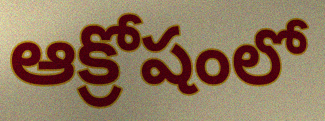
ఆక్రోషంలో